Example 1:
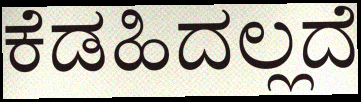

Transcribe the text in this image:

ಕೆಡಹಿದಲ್ಲದೆ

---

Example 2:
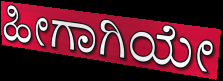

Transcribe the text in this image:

ಹೀಗಾಗಿಯೇ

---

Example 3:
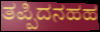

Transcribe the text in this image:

ತಪ್ಪಿದನಹಹ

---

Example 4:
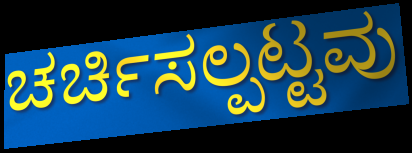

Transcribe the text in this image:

ಚರ್ಚಿಸಲ್ಪಟ್ಟವು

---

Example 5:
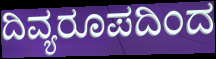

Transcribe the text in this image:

ದಿವ್ಯರೂಪದಿಂದ